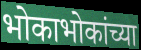
भोकाभोकांच्या